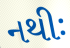
નથીઃ